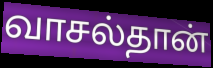
வாசல்தான்